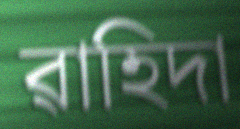
ৱাহিদা